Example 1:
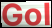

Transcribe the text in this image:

Gol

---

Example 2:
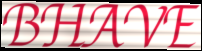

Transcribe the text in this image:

BHAVE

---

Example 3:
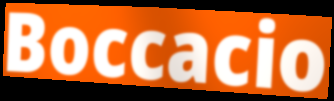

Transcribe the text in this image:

Boccacio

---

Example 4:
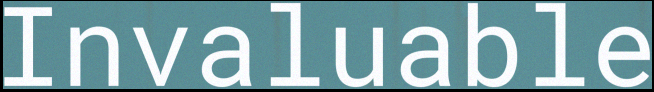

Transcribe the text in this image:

Invaluable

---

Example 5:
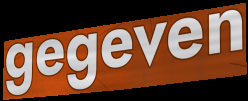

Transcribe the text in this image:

gegeven